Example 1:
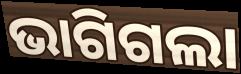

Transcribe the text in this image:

ଭାଗିଗଲା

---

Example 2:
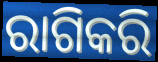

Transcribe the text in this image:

ରାଗିକରି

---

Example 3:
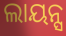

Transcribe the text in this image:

ଲାୟନ୍ସ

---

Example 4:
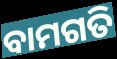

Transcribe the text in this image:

ବାମଗତି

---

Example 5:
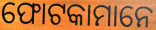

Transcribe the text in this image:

ଫୋଟକାମାନେ